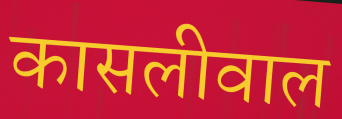
कासलीवाल